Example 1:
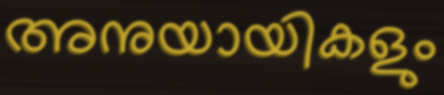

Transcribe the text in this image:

അനുയായികളും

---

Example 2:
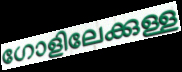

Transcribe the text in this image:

ഗോളിലേക്കുള്ള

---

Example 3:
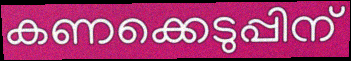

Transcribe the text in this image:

കണക്കെടുപ്പിന്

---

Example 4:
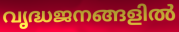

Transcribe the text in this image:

വൃദ്ധജനങ്ങളിൽ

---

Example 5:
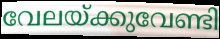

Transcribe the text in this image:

വേലയ്ക്കുവേണ്ടി